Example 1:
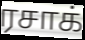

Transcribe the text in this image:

ரசாக்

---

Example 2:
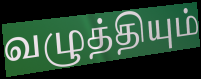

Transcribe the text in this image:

வழுத்தியும்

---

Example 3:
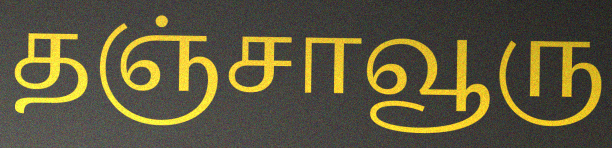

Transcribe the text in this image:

தஞ்சாவூரு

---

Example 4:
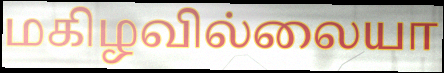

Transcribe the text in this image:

மகிழவில்லையா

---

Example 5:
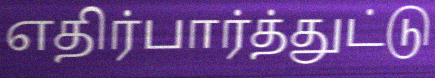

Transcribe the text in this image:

எதிர்பார்த்துட்டு